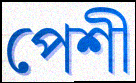
পেশী